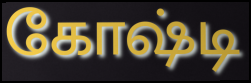
கோஷ்டி